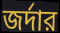
জর্দার